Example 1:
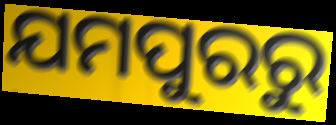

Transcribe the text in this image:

ଯମପୁରରୁ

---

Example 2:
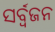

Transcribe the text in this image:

ସର୍ବ୍ବଜନ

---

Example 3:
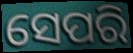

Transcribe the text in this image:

ସେପରି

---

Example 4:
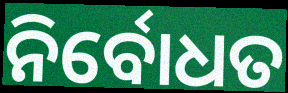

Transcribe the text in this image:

ନିର୍ବୋଧତ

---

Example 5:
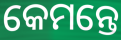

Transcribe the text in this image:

କେମନ୍ତେ